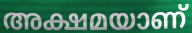
അക്ഷമയാണ്